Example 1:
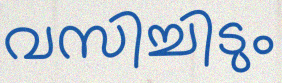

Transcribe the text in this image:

വസിച്ചിടും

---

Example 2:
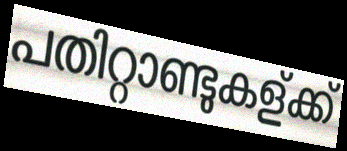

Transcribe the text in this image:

പതിറ്റാണ്ടുകള്ക്ക്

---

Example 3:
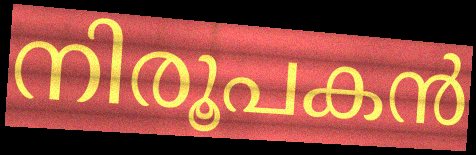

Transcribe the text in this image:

നിരൂപകൻ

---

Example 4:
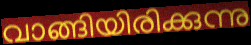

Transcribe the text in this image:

വാങ്ങിയിരിക്കുന്നു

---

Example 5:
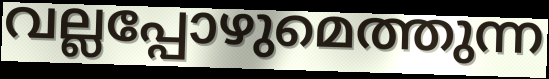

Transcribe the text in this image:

വല്ലപ്പോഴുമെത്തുന്ന